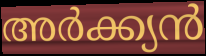
അർക്ക്യൻ